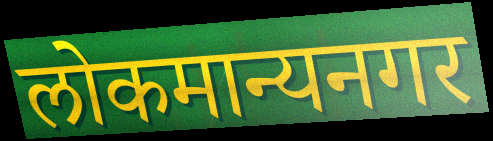
लोकमान्यनगर